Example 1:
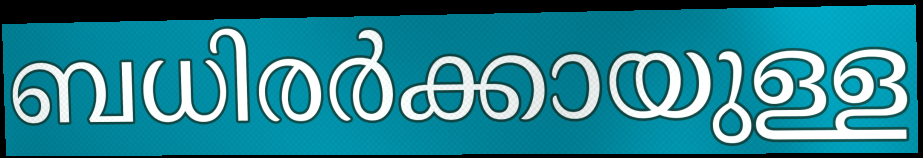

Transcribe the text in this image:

ബധിരർക്കായുള്ള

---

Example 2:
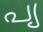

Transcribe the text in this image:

പ്യ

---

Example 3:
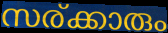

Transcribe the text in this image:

സര്ക്കാരും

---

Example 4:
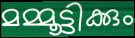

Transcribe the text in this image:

മമ്മൂട്ടിക്കും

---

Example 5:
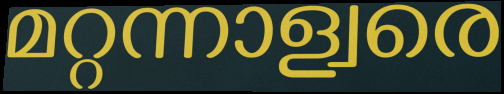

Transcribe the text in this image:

മറ്റന്നാള്വരെ